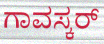
ಗಾವಸ್ಕರ್